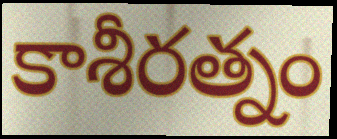
కాశీరత్నం